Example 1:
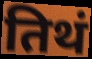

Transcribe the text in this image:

तिथं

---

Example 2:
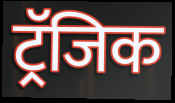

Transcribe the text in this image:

ट्रॅजिक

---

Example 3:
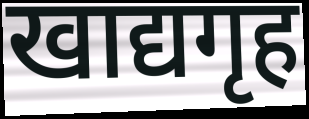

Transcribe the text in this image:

खाद्यगृह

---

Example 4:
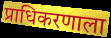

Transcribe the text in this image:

प्राधिकरणाला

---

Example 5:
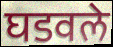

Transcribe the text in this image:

घडवले